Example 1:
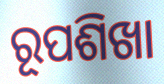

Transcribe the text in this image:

ରୂପଶିଖା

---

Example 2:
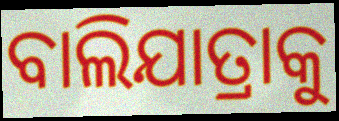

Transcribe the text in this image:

ବାଲିଯାତ୍ରାକୁ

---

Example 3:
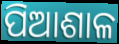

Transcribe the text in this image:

ପିଆଶାଳ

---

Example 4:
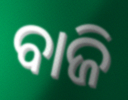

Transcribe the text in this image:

ବାଜି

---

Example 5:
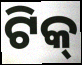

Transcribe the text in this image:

ଟିକ୍